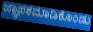
ಜ್ಞಾಪಕಮಾಡಿಕೊಂಡು